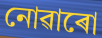
নোৱাৰো